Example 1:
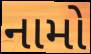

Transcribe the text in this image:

નામો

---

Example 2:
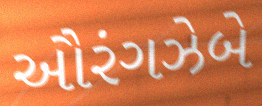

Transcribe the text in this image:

ઔરંગઝેબે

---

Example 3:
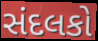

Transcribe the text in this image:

સંદલકો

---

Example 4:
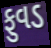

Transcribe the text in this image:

ફુવડ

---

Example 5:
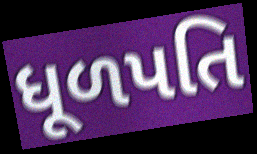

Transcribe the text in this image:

ધૂળપતિ